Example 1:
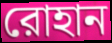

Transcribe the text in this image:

রোহান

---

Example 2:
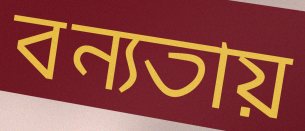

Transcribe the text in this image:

বন্যতায়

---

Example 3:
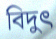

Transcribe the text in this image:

বিদুৎ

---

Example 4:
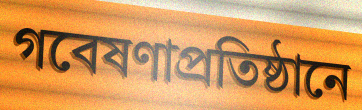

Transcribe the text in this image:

গবেষণাপ্রতিষ্ঠানে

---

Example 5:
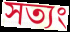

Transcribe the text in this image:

সত্যং